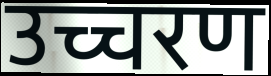
उच्चरण